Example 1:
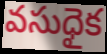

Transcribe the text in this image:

వసుధైక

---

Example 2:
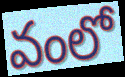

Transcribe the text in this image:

వంలో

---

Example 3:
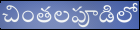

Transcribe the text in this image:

చింతలపూడిలో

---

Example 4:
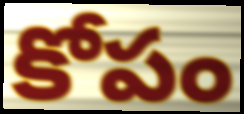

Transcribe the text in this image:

కోపం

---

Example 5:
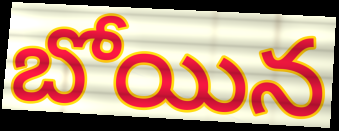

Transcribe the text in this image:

బోయిన